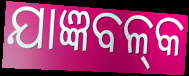
ଯାଜ୍ଞବଳ୍‌କ